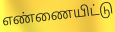
எண்ணையிட்டு